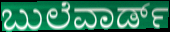
ಬುಲೆವಾರ್ಡ್